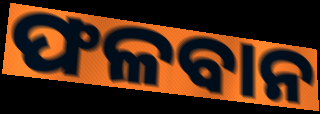
ଫଳବାନ